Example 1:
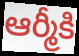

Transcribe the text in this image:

ఆర్మీకి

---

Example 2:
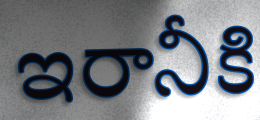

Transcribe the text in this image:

ఇరానీకి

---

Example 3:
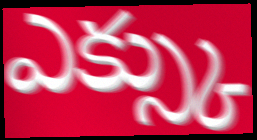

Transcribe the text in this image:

ఎక్స్కు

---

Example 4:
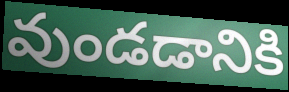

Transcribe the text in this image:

వుండడానికి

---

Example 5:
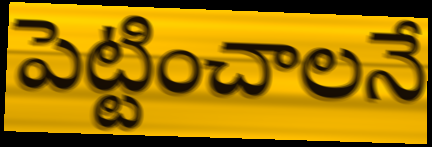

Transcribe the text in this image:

పెట్టించాలనే